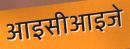
आइसीआइजे